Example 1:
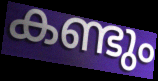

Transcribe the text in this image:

കണ്ടും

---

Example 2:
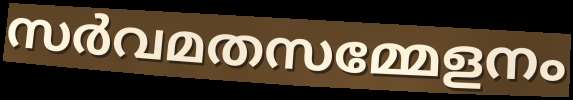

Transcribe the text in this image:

സർവമതസമ്മേളനം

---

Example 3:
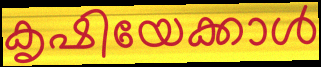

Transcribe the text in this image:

കൃഷിയേക്കാൾ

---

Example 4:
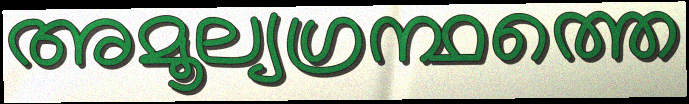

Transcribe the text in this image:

അമൂല്യഗ്രന്ഥത്തെ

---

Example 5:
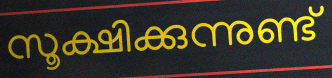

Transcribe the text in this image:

സൂക്ഷിക്കുന്നുണ്ട്